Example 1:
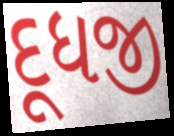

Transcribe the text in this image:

દૂધજી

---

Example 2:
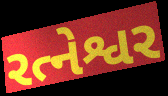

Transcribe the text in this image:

રત્નેશ્વર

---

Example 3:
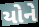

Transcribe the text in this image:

યોને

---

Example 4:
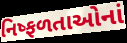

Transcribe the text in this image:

નિષ્ફળતાઓનાં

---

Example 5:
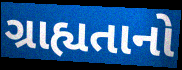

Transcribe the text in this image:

ગ્રાહ્યતાનો